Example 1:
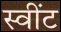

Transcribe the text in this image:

स्वींट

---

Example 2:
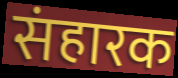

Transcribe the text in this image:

संहारक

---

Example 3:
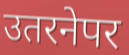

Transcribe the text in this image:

उतरनेपर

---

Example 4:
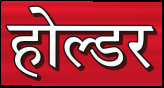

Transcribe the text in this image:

होल्डर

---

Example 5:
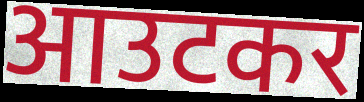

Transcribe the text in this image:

आउटकर